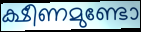
ക്ഷീണമുണ്ടോ